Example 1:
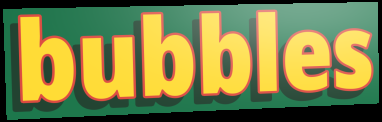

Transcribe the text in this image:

bubbles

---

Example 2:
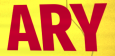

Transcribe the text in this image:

ARY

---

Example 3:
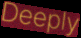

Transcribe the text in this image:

Deeply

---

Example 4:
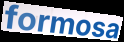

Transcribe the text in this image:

formosa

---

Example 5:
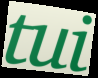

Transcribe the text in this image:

tui